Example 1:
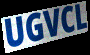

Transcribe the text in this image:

UGVCL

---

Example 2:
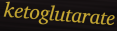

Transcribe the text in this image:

ketoglutarate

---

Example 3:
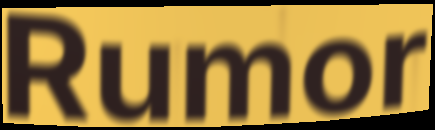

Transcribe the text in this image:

Rumor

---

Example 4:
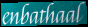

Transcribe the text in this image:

enbathaal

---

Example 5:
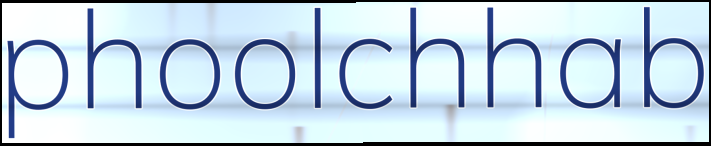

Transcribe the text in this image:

phoolchhab